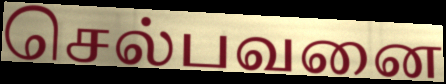
செல்பவனை